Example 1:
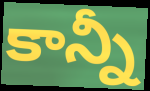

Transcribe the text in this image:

కాన్నీ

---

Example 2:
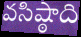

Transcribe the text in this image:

వసిష్ఠాది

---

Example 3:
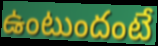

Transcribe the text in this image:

ఉంటుందంటే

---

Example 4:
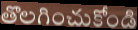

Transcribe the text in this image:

తొలగించుకోండి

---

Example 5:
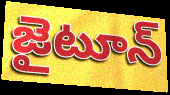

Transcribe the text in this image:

జైటూన్